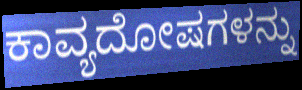
ಕಾವ್ಯದೋಷಗಳನ್ನು